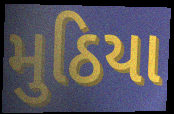
મુઠિયા